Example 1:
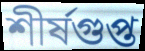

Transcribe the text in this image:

শীর্ষগুপ্ত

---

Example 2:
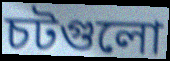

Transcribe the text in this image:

চটগুলো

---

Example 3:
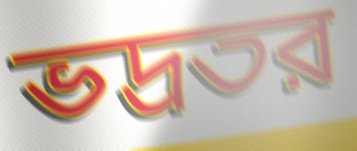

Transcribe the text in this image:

ভদ্রতর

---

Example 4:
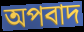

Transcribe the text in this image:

অপবাদ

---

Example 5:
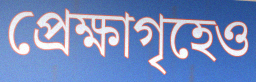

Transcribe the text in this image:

প্রেক্ষাগৃহেও